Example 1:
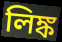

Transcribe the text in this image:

লিঙ্ক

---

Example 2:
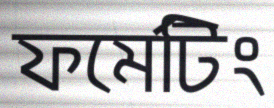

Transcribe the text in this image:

ফর্মেটিং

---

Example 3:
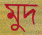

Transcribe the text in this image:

মুদ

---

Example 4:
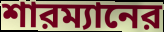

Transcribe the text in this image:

শারম্যানের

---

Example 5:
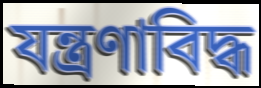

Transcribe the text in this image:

যন্ত্রণাবিদ্ধ